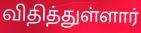
விதித்துள்ளார்